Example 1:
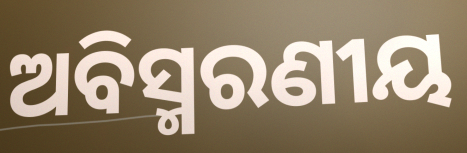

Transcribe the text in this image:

ଅବିସ୍ମରଣୀୟ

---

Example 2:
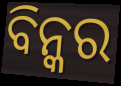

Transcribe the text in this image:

ବିନ୍କର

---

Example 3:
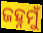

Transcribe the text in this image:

ଜହ୍ନମୁଁ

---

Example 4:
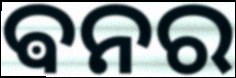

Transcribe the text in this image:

ଵନର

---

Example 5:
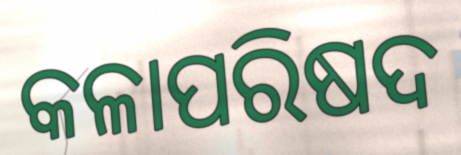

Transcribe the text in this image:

କଳାପରିଷଦ